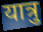
यात्रु